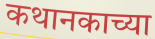
कथानकाच्या